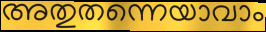
അതുതന്നെയാവാം